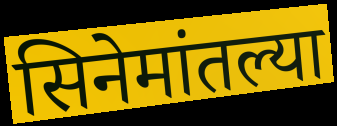
सिनेमांतल्या